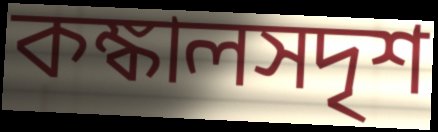
কঙ্কালসদৃশ